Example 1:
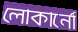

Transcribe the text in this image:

লোকার্নো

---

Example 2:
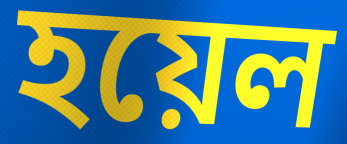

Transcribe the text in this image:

হয়েল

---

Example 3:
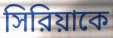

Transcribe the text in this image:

সিরিয়াকে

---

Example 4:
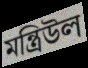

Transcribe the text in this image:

মন্ত্রিউল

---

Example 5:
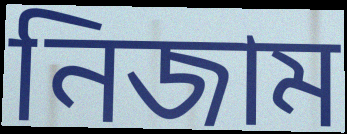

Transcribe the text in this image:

নিজাম